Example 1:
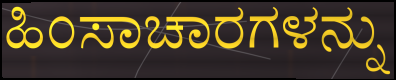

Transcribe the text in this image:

ಹಿಂಸಾಚಾರಗಳನ್ನು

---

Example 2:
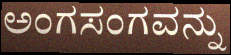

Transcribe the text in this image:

ಅಂಗಸಂಗವನ್ನು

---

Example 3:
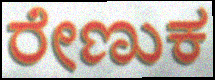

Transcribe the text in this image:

ರೇಣುಕ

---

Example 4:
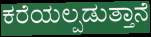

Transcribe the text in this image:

ಕರೆಯಲ್ಪಡುತ್ತಾನೆ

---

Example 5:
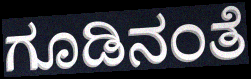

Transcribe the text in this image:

ಗೂಡಿನಂತೆ